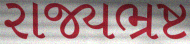
રાજ્યભ્રષ્ટ